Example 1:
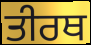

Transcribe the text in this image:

ਤੀਰਥ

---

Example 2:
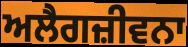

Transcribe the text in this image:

ਅਲੈਗਜ਼ੀਵਨਾ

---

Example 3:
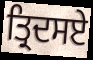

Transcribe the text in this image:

ਤ੍ਰਿਦਸਏ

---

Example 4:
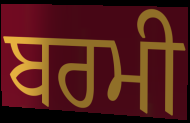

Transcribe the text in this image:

ਬਰਮੀ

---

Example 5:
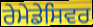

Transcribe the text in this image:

ਰੇਮੇਡੇਸਿਵਰ